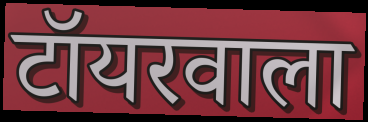
टॉयरवाला